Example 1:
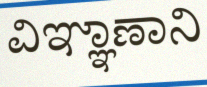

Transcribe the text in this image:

ವಿಞ್ಞಾಣಾನಿ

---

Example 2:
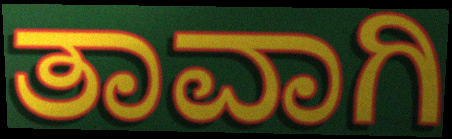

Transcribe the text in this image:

ತಾವಾಗಿ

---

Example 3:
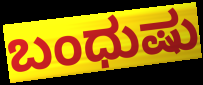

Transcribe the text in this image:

ಬಂಧುಷು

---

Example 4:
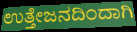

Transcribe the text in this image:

ಉತ್ತೇಜನದಿಂದಾಗಿ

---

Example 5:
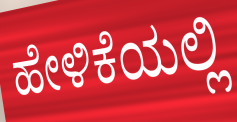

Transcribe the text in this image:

ಹೇಳಿಕೆಯಲ್ಲಿ